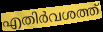
എതിർവശത്ത്